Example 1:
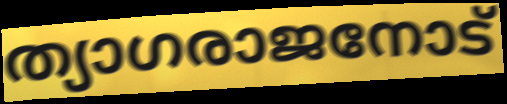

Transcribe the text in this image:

ത്യാഗരാജനോട്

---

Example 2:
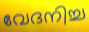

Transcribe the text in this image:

വേദനിച്ച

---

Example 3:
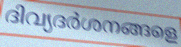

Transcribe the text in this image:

ദിവ്യദർശനങ്ങളെ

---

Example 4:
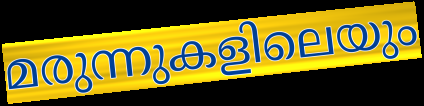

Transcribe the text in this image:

മരുന്നുകളിലെയും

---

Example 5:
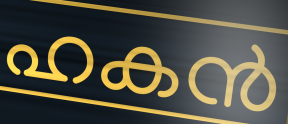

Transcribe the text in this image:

ഹകൻ